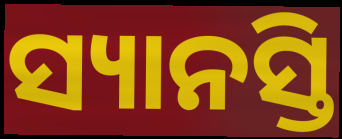
ସ୍ୟାନସ୍ତି